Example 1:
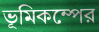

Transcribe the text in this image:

ভূমিকম্পের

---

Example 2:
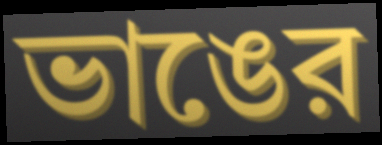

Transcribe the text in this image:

ভাঙের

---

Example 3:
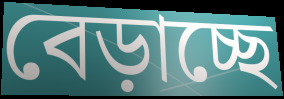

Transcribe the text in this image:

বেড়াচ্ছে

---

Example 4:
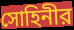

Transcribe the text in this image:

সোহিনীর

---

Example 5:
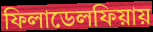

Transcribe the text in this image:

ফিলাডেলফিয়ায়